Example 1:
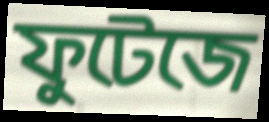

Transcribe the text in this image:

ফুটেজে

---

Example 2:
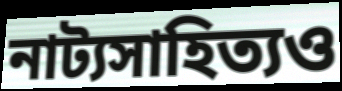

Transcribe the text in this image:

নাট্যসাহিত্যও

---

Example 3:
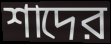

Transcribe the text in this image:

শাদের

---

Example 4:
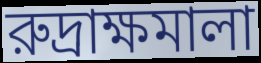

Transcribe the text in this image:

রুদ্রাক্ষমালা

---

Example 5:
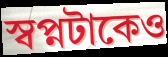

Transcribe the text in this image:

স্বপ্নটাকেও